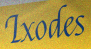
Ixodes